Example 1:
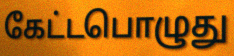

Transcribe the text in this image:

கேட்டபொழுது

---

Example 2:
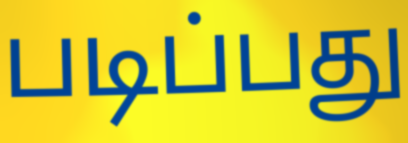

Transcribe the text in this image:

படிப்பது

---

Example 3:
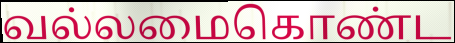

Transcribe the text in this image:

வல்லமைகொண்ட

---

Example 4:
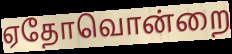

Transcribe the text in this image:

ஏதோவொன்றை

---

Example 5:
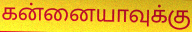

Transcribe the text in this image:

கன்னையாவுக்கு